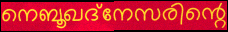
നെബൂഖദ്നേസരിന്റെ